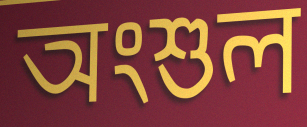
অংশুল